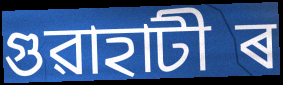
গুৱাহাটীৰ